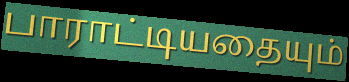
பாராட்டியதையும்